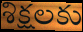
శిక్షలకు